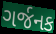
ગર્જનક